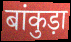
बांकुड़ा